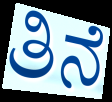
ತಿನೆ